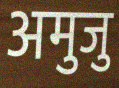
अमुजु